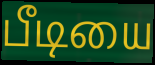
பீடியை